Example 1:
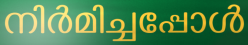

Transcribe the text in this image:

നിർമിച്ചപ്പോൾ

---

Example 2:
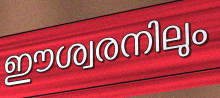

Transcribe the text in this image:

ഈശ്വരനിലും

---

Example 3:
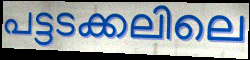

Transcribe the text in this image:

പട്ടടക്കലിലെ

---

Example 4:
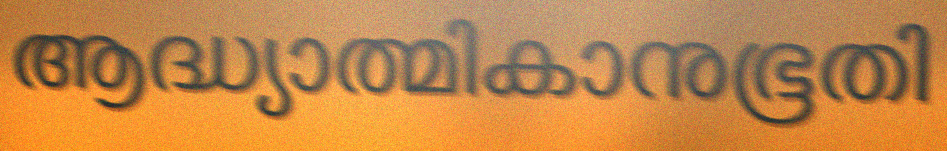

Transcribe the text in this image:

ആദ്ധ്യാത്മികാനുഭൂതി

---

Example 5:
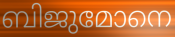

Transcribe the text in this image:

ബിജുമോനെ